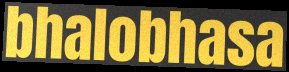
bhalobhasa